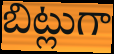
బిట్లుగా